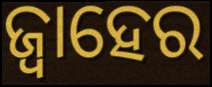
ଜ୍ୱାହେର